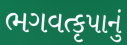
ભગવત્કૃપાનું